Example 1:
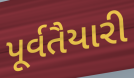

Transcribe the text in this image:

પૂર્વતૈયારી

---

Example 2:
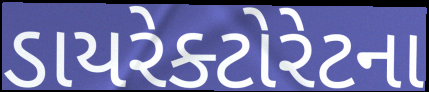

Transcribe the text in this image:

ડાયરેક્ટોરેટના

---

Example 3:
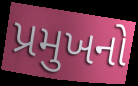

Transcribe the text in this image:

પ્રમુખનો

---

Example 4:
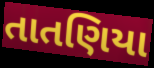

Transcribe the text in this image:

તાતણિયા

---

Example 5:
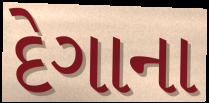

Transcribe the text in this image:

દેગાના